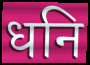
धनि